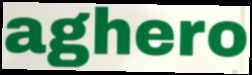
aghero